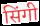
सिंगी